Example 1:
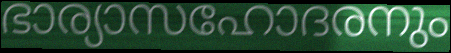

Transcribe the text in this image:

ഭാര്യാസഹോദരനും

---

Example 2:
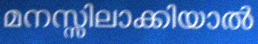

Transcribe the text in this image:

മനസ്സിലാക്കിയാൽ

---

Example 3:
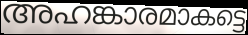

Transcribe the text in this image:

അഹങ്കാരമാകട്ടെ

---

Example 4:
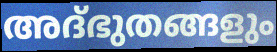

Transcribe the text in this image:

അദ്ഭുതങ്ങളും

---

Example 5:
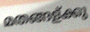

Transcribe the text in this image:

മതങ്ങള്ക്കു